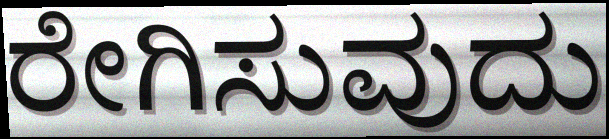
ರೇಗಿಸುವುದು